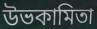
উভকামিতা